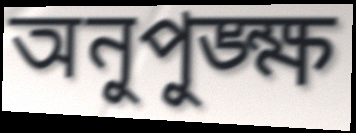
অনুপুঙ্ক্ষ